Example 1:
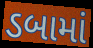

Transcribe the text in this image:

ડબામાં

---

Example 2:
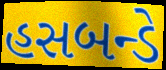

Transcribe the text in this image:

હસબન્ડે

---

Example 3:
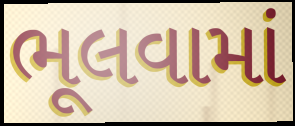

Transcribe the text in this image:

ભૂલવામાં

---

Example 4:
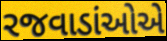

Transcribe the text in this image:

રજવાડાંઓએ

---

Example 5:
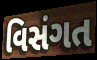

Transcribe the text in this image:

વિસંગત